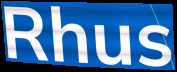
Rhus